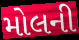
મોલની